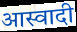
आस्वादी